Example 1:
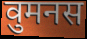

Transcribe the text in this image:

वुमनस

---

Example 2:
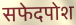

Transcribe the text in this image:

सफेदपोश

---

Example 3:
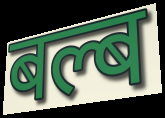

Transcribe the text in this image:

बल्‍ब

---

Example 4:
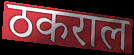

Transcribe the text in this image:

ठकराल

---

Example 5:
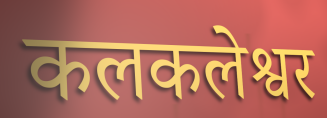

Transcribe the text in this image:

कलकलेश्वर